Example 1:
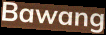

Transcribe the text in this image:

Bawang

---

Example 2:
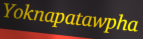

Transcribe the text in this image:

Yoknapatawpha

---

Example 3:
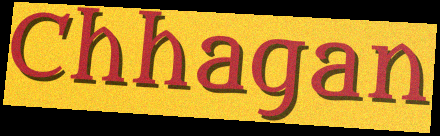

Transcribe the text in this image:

Chhagan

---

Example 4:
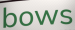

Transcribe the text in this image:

bows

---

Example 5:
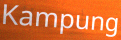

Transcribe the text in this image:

Kampung